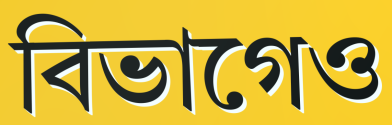
বিভাগেও